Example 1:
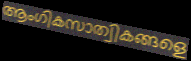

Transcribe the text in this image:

ആംഗികസാത്വികങ്ങളെ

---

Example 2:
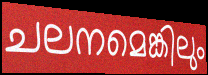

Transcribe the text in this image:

ചലനമെങ്കിലും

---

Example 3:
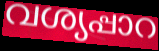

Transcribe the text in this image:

വശ്യപ്പാറ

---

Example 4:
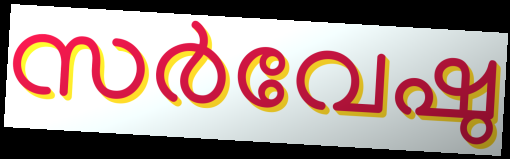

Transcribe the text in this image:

സർവേഷു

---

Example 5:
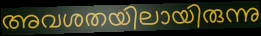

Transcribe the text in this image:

അവശതയിലായിരുന്നു